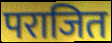
पराजित